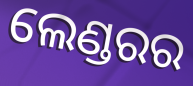
ଲେଣ୍ଡରର